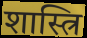
शास्त्रि